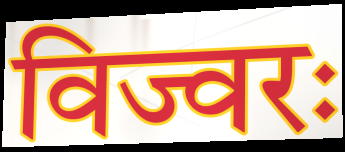
विज्वरः